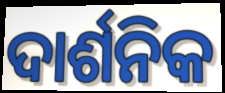
ଦାର୍ଶନିକ